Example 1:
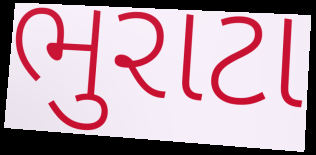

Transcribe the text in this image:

ભુરાટા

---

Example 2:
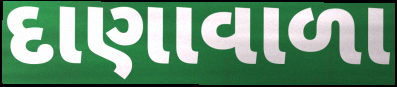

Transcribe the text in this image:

દાણાવાળા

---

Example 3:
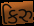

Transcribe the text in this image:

કિરુ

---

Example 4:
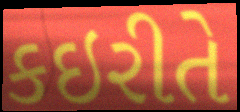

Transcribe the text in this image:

કઇરીતે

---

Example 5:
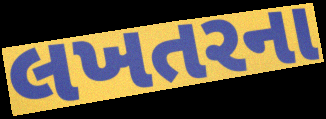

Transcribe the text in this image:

લખતરના